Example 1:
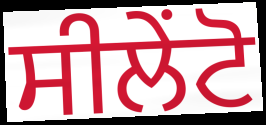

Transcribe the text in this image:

ਸੀਲੇਂਟੋ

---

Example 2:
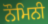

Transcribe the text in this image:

ਨੌਮਿਨੀ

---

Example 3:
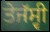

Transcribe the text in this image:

ਤੇਜੱਸ੍ਵੀ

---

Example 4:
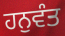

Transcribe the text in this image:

ਹਨੁਵੰਤ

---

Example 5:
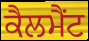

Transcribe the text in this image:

ਕੈਲਮੈਂਟ